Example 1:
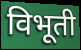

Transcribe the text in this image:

विभूती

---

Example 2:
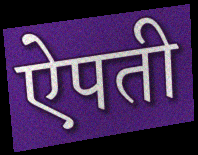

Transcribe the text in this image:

ऐपती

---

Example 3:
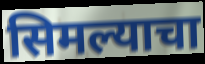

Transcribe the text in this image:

सिमल्याचा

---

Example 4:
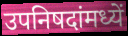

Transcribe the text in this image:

उपनिषदांमध्यें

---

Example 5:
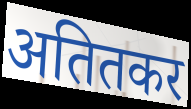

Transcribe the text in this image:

अतितकर